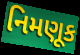
નિમણૂક